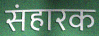
संहारक